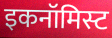
इकनॉमिस्‍ट